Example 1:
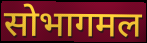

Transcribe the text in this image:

सोभागमल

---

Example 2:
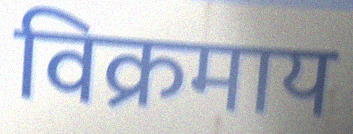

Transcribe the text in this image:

विक्रमाय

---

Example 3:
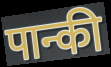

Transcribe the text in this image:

पान्की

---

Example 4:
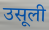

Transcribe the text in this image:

उसूली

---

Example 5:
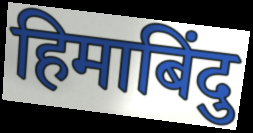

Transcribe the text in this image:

हिमाबिंदु